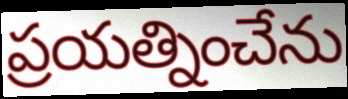
ప్రయత్నించేను